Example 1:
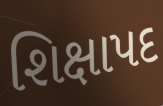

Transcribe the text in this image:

શિક્ષાપદ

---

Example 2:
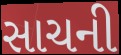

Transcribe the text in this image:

સાચની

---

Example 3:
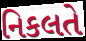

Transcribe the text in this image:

નિકલતે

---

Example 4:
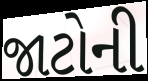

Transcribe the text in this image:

જાટોની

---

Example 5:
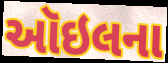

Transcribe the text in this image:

ઑઇલના